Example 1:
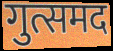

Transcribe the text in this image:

गुत्समद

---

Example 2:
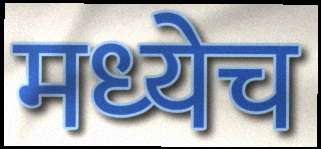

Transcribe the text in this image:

मध्‍येच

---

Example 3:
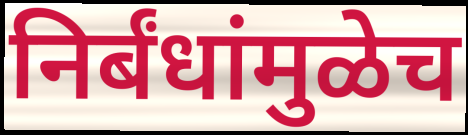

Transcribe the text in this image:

निर्बंधांमुळेच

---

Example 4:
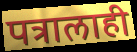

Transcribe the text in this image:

पत्रालाही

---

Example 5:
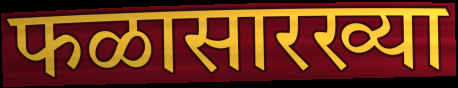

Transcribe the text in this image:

फळासारख्या